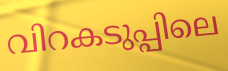
വിറകടുപ്പിലെ